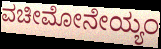
ವಚೀಮೋನೇಯ್ಯಂ